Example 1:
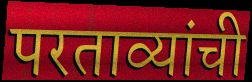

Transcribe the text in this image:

परताव्यांची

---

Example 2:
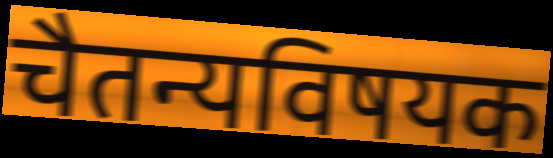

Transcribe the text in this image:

चैतन्यविषयक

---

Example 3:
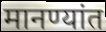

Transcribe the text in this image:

मानण्यांत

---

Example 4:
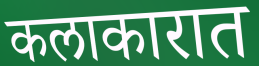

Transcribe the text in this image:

कलाकारात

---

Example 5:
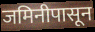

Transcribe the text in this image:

जमिनीपासून